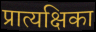
प्रात्यक्षिका